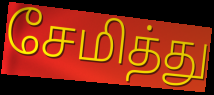
சேமித்து